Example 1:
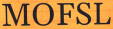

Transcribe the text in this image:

MOFSL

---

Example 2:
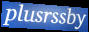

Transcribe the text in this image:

plusrssby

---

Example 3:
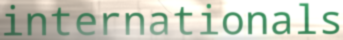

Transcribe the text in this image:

internationals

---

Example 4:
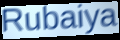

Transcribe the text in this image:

Rubaiya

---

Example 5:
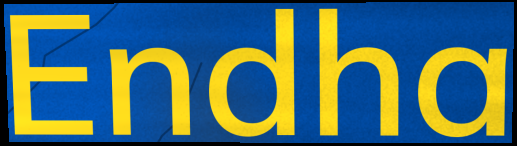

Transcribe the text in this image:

Endha